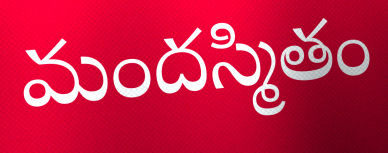
మందస్మితం